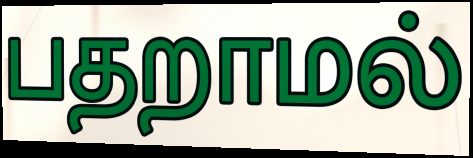
பதறாமல்